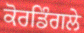
ਕੋਰਡਿੰਗਲੇ